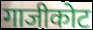
गाजीकोट